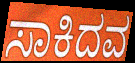
ಸಾಕಿದವ